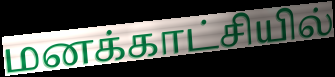
மனக்காட்சியில்